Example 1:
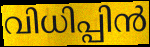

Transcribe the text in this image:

വിധിപ്പിൻ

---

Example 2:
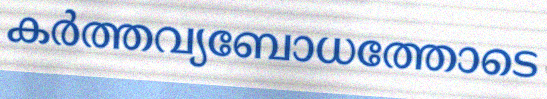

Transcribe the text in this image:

കർത്തവ്യബോധത്തോടെ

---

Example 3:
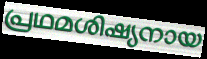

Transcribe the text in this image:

പ്രഥമശിഷ്യനായ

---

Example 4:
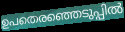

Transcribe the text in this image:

ഉപതെരഞ്ഞെടുപ്പിൽ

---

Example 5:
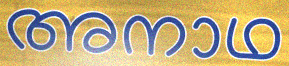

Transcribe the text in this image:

അനാഥ